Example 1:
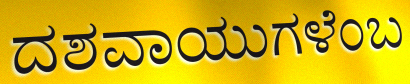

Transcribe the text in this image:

ದಶವಾಯುಗಳೆಂಬ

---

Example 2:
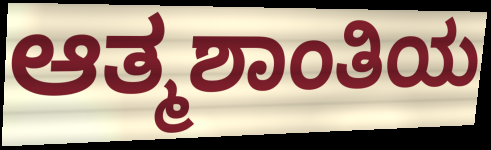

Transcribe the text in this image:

ಆತ್ಮಶಾಂತಿಯ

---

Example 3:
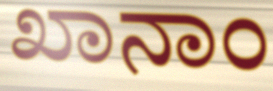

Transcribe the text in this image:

ಖಾನಾಂ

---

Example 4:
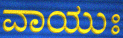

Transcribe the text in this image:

ವಾಯುಃ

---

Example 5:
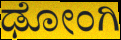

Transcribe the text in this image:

ಢೋಂಗಿ